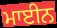
ਮਾਈਨ